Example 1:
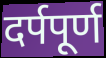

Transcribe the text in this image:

दर्पपूर्ण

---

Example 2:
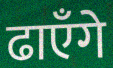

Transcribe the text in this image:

ढाएँगे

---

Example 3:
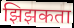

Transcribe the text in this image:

झिझकता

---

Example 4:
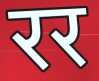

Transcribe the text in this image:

रर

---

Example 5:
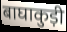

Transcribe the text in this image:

बाघाकुड़ी